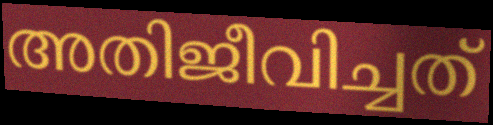
അതിജീവിച്ചത്